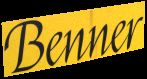
Benner